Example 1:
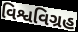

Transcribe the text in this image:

વિશ્વવિગ્રહ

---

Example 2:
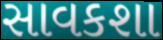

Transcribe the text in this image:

સાવકશા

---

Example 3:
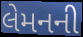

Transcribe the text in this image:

લેમનની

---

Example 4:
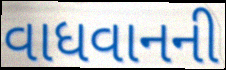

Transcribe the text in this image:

વાધવાનની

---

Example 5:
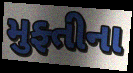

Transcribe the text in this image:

મુફ્તીના